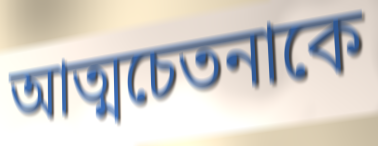
আত্মচেতনাকে